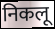
निकलू